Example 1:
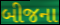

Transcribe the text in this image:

બીજના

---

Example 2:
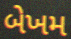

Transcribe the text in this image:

બેખમ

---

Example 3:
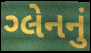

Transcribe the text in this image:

ગ્લેનનું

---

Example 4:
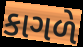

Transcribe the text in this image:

કાગળે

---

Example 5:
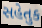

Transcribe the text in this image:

સહેતુક